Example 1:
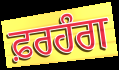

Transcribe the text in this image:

ਫ਼ਰਹੰਗ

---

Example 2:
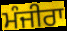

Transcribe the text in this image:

ਮੰਜੀਰਾ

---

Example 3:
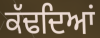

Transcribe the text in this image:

ਕੱਢਦਿਆਂ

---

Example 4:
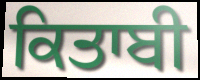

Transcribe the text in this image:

ਕਿਤਾਬੀ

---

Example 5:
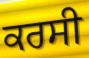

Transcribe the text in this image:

ਕਰਸੀ